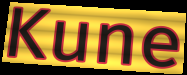
Kune